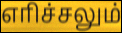
எரிச்சலும்